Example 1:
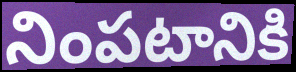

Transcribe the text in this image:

నింపటానికి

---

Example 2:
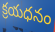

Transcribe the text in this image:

క్రయధనం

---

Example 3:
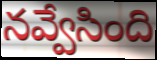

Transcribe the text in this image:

నవ్వేసింది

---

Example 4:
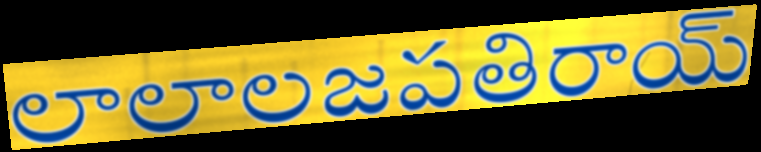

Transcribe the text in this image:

లాలాలజపతిరాయ్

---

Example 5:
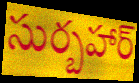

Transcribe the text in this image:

సుర్బహార్